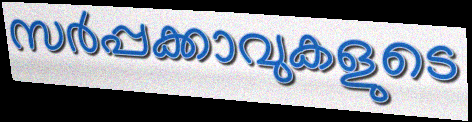
സർപ്പക്കാവുകളുടെ